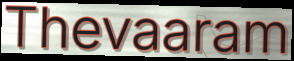
Thevaaram